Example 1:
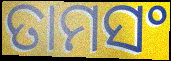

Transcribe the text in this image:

ତାମସଂ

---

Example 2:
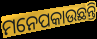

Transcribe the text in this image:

ମନେପକାଉଛନ୍ତି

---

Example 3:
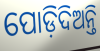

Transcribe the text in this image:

ପୋଡ଼ିଦିଅନ୍ତି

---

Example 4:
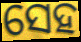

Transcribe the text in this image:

ସେହ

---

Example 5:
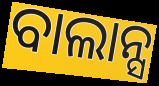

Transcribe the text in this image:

ବାଲାନ୍ସ